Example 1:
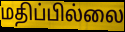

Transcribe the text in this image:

மதிப்பில்லை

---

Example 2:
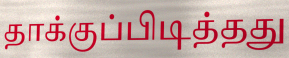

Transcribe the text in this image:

தாக்குப்பிடித்தது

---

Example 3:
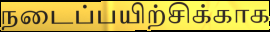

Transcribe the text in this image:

நடைப்பயிற்சிக்காக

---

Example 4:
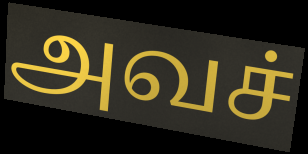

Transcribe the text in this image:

அவச்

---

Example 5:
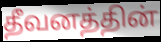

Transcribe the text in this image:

தீவனத்தின்